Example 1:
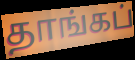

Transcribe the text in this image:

தாங்கப்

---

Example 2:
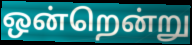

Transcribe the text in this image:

ஒன்றென்று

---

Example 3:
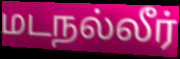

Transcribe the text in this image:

மடநல்லீர்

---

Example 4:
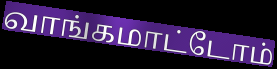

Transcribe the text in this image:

வாங்கமாட்டோம்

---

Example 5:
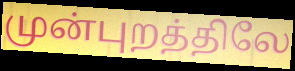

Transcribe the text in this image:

முன்புறத்திலே